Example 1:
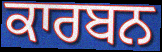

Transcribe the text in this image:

ਕਾਰਬਨ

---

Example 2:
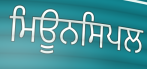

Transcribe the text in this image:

ਮਿਊਨਸਿਪਲ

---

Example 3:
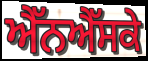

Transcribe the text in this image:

ਐੱਨਐੱਸਕੇ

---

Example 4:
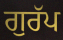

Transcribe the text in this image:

ਗੁਰੱਪ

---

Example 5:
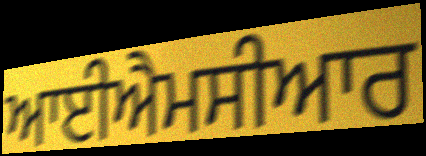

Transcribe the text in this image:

ਆਈਐਮਸੀਆਰ